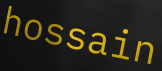
hossain